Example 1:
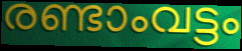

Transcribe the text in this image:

രണ്ടാംവട്ടം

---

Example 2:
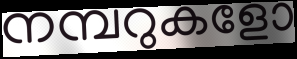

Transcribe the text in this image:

നമ്പറുകളോ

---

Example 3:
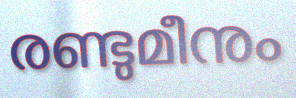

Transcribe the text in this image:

രണ്ടുമീനും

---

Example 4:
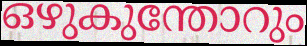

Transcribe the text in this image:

ഒഴുകുന്തോറും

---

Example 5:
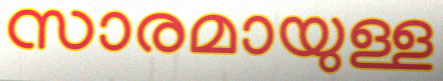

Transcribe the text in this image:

സാരമായുള്ള